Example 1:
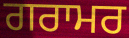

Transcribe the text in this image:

ਗਰਾਮਰ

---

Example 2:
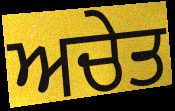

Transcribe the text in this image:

ਅਚੇਤ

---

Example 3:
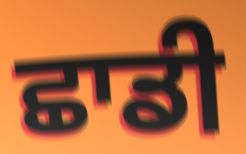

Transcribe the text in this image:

ਛਾਡੀ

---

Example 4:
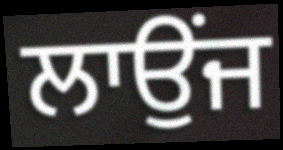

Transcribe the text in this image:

ਲਾਉਂਜ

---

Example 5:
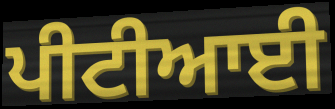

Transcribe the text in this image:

ਪੀਟੀਆਈ